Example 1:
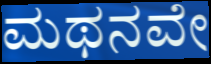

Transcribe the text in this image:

ಮಥನವೇ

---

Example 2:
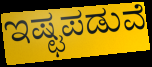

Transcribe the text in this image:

ಇಷ್ಟಪಡುವೆ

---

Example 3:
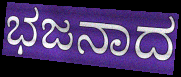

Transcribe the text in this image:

ಭಜನಾದ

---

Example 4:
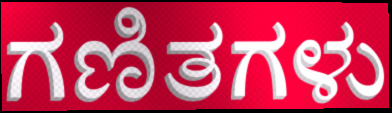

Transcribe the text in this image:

ಗಣಿತಗಳು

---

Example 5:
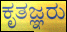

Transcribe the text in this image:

ಕೃತಜ್ಞರು